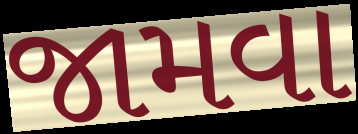
જામવા